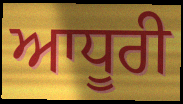
ਆਧੂਰੀ